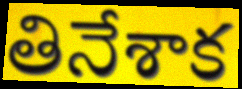
తినేశాక